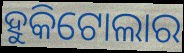
ହୁକିଟୋଲାର